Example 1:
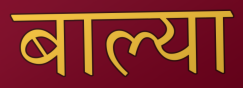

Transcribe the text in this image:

बाल्या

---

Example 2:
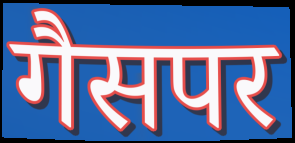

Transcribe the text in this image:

गैसपर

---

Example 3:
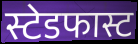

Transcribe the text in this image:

स्टेडफास्ट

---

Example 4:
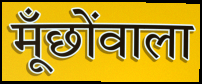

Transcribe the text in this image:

मूँछोंवाला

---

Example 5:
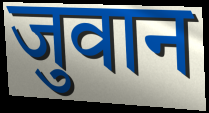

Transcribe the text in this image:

जुवान